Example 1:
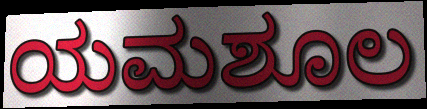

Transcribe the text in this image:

ಯಮಶೂಲ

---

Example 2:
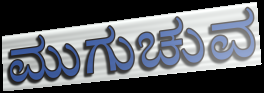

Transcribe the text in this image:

ಮುಗುಚುವ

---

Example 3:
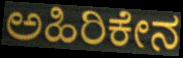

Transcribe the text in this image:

ಅಹಿರಿಕೇನ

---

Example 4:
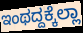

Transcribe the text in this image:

ಇಂಥದ್ದಕ್ಕೆಲ್ಲಾ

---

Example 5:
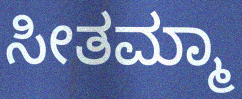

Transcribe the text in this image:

ಸೀತಮ್ಮಾ